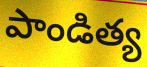
పాండిత్య